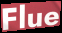
Flue